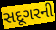
સદૂગરની